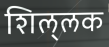
शिल्लक